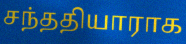
சந்ததியாராக